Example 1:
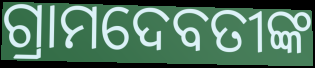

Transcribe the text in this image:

ଗ୍ରାମଦେବତୀଙ୍କ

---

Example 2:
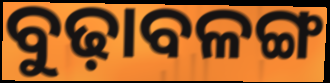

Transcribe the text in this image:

ବୁଢ଼ାବଳଙ୍ଗ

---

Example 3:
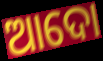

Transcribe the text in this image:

ଆଦୋ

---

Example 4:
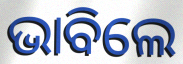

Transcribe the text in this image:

ଭାବିଲେ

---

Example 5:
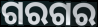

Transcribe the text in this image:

ଗରଗର